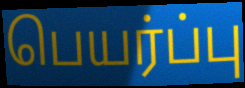
பெயர்ப்பு